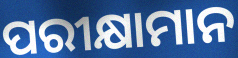
ପରୀକ୍ଷାମାନ